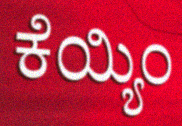
ಕೆಯ್ಯಿಂ